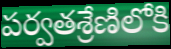
పర్వతశ్రేణిలోకి